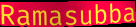
Ramasubba